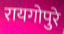
रायगोपुरे